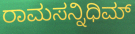
ರಾಮಸನ್ನಿಧಿಮ್